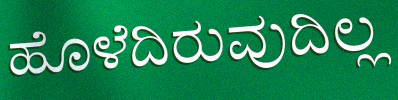
ಹೊಳೆದಿರುವುದಿಲ್ಲ